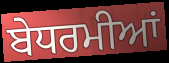
ਬੇਧਰਮੀਆਂ